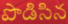
పొడిసిన